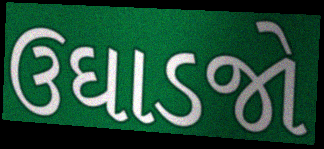
ઉઘાડજો